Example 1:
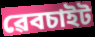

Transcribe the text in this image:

ৱেবচাইট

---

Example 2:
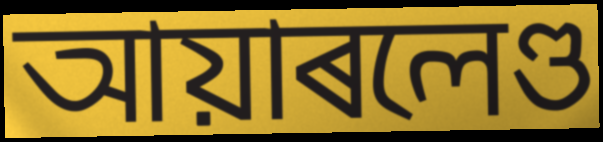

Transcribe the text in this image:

আয়াৰলেণ্ড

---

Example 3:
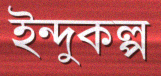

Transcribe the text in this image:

ইন্দুকল্প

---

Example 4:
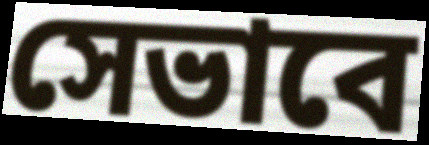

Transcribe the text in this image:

সেভাবে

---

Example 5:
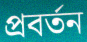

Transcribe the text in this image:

প্ৰবৰ্তন